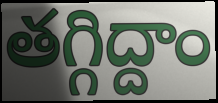
తగ్గిద్దాం